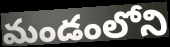
మండంలోని